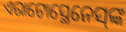
ଏରାଟୋସ୍ଥେନେସ୍‌ଙ୍କ